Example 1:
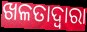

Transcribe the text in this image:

ଖଳତାଦ୍ଵାରା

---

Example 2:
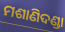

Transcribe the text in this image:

ମଶାଣିଦଣ୍ଡା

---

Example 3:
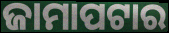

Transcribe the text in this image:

ଜାମାପଟାର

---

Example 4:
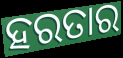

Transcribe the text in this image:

ହରତାର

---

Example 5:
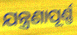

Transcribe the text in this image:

ଯନ୍ତ୍ରଣାପୂର୍ଣ୍ଣ